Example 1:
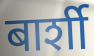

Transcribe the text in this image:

बार्शी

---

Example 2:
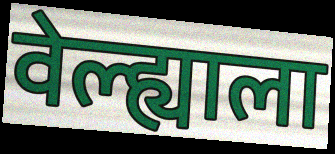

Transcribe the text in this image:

वेल्ह्याला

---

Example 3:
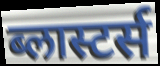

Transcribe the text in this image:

ब्लास्टर्स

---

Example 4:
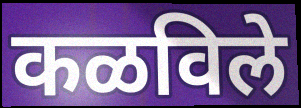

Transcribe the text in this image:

कळविले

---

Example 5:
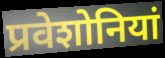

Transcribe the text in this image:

प्रवेशोनियां